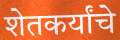
शेतकर्यांचे